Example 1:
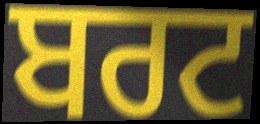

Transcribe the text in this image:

ਬਰਟ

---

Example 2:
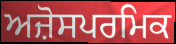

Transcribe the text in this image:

ਅਜ਼ੋਸਪਰਮਿਕ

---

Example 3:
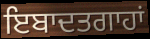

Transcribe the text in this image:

ਇਬਾਦਤਗਾਹਾਂ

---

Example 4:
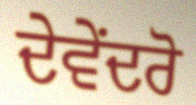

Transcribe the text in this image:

ਦੇਵੇਂਦਰੋ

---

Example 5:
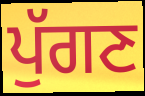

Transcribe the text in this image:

ਪੁੱਗਣ